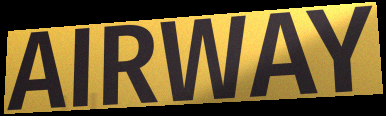
AIRWAY